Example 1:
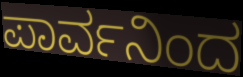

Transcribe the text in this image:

ಪಾರ್ವನಿಂದ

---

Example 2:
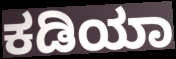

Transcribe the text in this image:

ಕಡಿಯಾ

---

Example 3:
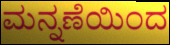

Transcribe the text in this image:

ಮನ್ನಣೆಯಿಂದ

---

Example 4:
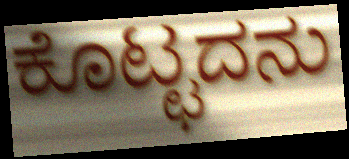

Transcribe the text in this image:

ಕೊಟ್ಟದನು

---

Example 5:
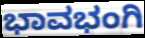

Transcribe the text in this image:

ಭಾವಭಂಗಿ